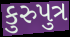
કુરુપુત્ર